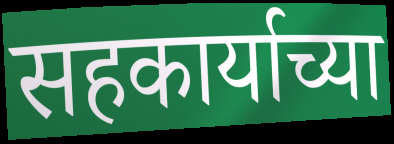
सहकार्याच्या